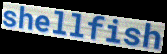
shellfish